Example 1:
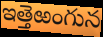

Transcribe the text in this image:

ఇత్తెఱంగున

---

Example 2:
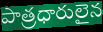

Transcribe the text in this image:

పాత్రధారులైన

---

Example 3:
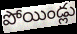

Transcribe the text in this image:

పోయిండ్లు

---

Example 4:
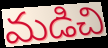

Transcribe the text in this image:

మడిచి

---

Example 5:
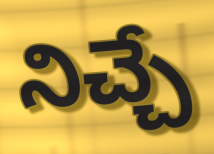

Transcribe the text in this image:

నిచ్చే